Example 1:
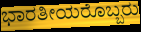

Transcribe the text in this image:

ಭಾರತೀಯರೊಬ್ಬರು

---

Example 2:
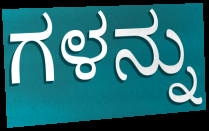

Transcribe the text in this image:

ಗಳನ್ನು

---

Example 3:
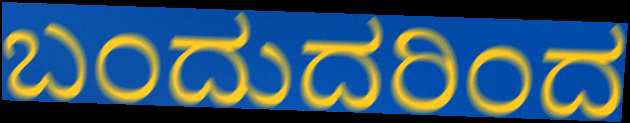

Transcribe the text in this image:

ಬಂದುದರಿಂದ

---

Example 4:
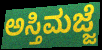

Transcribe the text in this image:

ಅಸ್ತಿಮಜ್ಜೆ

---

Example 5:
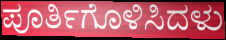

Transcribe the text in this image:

ಪೂರ್ತಿಗೊಳಿಸಿದಳು